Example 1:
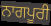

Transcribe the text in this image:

ਨਾਗਪੂਰੀ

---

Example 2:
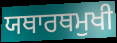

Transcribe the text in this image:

ਯਥਾਰਥਮੁਖੀ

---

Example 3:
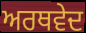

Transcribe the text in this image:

ਅਰਥਵੇਦ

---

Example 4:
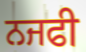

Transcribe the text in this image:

ਨਜਫੀ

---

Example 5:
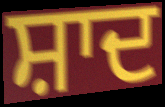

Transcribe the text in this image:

ਸ਼ਾਦ